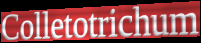
Colletotrichum